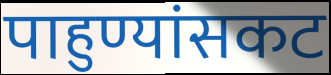
पाहुण्यांसकट